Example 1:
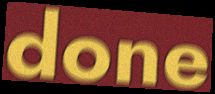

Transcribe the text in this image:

done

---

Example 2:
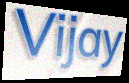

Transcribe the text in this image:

Vijay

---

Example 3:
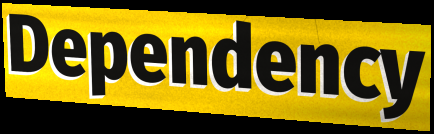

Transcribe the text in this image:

Dependency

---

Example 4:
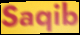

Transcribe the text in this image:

Saqib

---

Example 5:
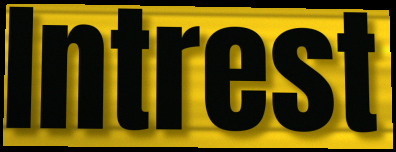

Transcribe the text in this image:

Intrest